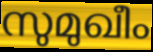
സുമുഖീം